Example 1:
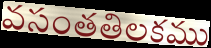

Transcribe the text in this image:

వసంతతిలకము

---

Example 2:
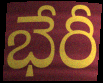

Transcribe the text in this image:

భేరీ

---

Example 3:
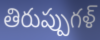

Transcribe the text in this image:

తిరుప్పుగళ్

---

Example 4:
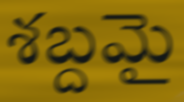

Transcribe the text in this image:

శబ్దమై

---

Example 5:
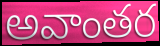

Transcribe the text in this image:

అవాంతర